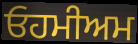
ਓਹਮੀਅਮ